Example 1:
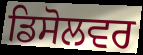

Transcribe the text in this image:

ਡਿਸੋਲਵਰ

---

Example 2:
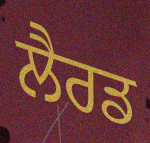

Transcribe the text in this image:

ਲੈਰਡ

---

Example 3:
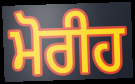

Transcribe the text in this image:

ਮੋਰੀਹ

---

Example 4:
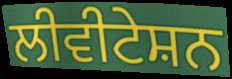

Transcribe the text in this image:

ਲੀਵੀਟੇਸ਼ਨ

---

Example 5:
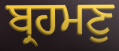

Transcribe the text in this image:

ਬ੍ਰਹਮਣੁ